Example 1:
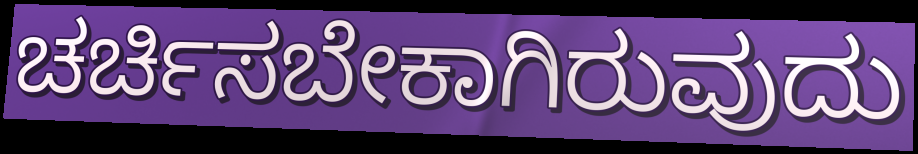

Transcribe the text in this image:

ಚರ್ಚಿಸಬೇಕಾಗಿರುವುದು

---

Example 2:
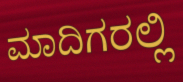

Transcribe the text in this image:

ಮಾದಿಗರಲ್ಲಿ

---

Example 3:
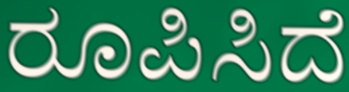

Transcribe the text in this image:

ರೂಪಿಸಿದೆ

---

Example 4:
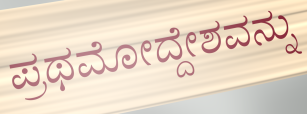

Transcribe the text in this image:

ಪ್ರಥಮೋದ್ದೇಶವನ್ನು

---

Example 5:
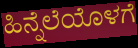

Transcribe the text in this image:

ಹಿನ್ನೆಲೆಯೊಳಗೆ